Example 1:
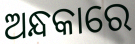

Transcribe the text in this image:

ଅନ୍ଧକାରେ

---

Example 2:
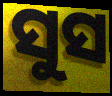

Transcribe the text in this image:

ସୁସ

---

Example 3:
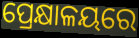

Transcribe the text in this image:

ପ୍ରେକ୍ଷାଳୟରେ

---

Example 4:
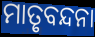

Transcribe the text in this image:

ମାତୃବନ୍ଦନା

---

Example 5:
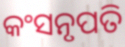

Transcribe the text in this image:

କଂସନୃପତି